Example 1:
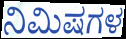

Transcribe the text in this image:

ನಿಮಿಷಗಳ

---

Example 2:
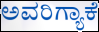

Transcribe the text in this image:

ಅವರಿಗ್ಯಾಕೆ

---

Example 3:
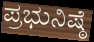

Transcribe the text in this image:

ಪ್ರಭುನಿಷ್ಠೆ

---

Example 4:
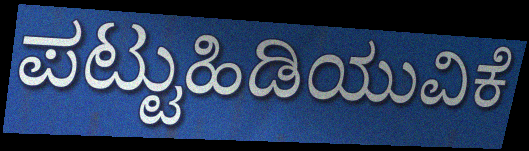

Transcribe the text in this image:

ಪಟ್ಟುಹಿಡಿಯುವಿಕೆ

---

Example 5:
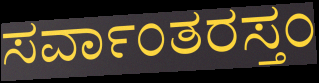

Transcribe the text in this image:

ಸರ್ವಾಂತರಸ್ತಂ